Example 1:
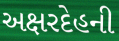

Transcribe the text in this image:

અક્ષરદેહની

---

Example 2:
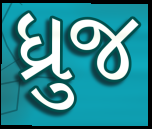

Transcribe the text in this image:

ધ્રુજ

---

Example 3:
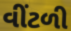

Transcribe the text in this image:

વીંટળી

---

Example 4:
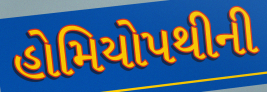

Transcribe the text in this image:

હોમિયોપથીની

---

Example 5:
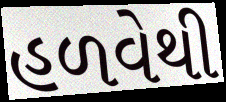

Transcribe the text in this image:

હળવેથી